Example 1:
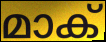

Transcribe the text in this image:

മാക്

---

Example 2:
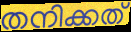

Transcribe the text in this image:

തനിക്കത്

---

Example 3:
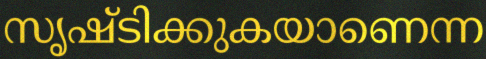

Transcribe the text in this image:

സൃഷ്ടിക്കുകയാണെന്ന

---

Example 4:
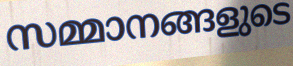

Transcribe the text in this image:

സമ്മാനങ്ങളുടെ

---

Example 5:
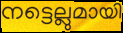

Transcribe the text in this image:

നട്ടെല്ലുമായി